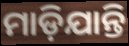
ମାଡ଼ିଯାନ୍ତି